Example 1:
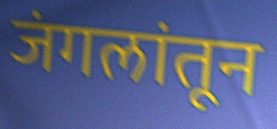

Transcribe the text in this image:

जंगलांतून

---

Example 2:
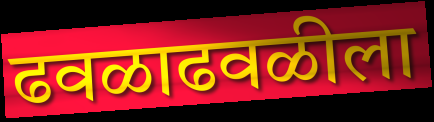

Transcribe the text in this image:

ढवळाढवळीला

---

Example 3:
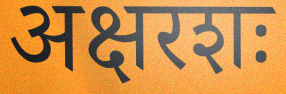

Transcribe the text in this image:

अक्षरशः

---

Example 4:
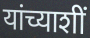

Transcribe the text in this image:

यांच्याशीं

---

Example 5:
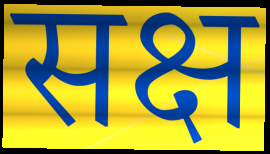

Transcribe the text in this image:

सक्ष